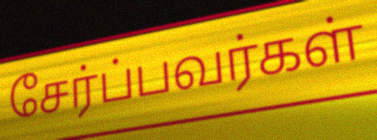
சேர்ப்பவர்கள்